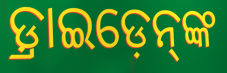
ଡ଼୍ରାଇଡ଼େନ୍‌ଙ୍କ